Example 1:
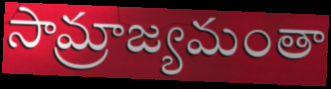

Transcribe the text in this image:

సామ్రాజ్యమంతా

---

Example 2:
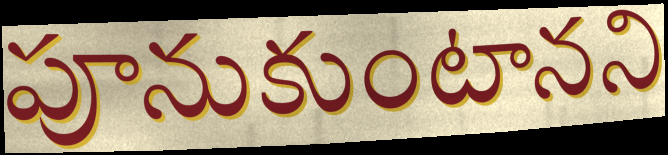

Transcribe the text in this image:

పూనుకుంటానని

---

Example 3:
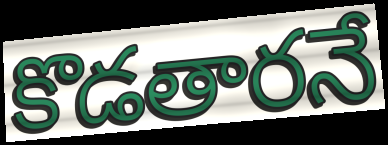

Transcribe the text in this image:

కొడతారనే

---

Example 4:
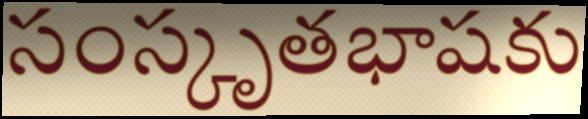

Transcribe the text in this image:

సంస్కృతభాషకు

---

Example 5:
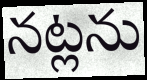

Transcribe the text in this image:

నట్లను